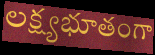
లక్ష్యభూతంగా